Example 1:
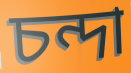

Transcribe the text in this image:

চন্দা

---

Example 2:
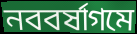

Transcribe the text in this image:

নববর্ষাগমে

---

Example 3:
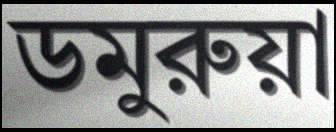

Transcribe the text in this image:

ডমুরুয়া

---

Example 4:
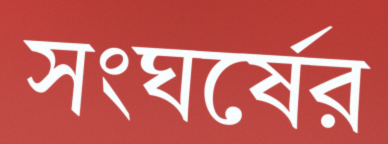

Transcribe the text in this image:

সংঘর্ষের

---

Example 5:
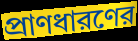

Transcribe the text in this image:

প্রাণধারণের